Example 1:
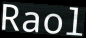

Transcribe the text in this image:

Raol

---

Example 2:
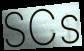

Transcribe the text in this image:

SCs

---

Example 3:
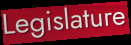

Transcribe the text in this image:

Legislature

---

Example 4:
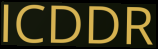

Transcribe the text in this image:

ICDDR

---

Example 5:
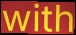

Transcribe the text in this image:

with